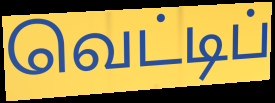
வெட்டிப்